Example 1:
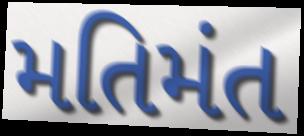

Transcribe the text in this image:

મતિમંત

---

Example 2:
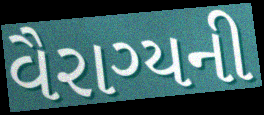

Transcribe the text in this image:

વૈરાગ્યની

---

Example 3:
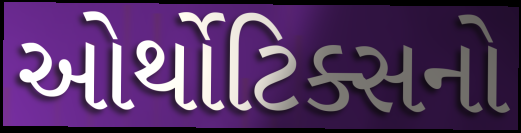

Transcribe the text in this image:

ઓર્થોટિક્સનો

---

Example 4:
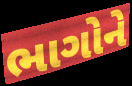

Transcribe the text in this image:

ભાગોને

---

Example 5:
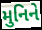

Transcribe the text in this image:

મુનિને